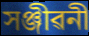
সঞ্জীৱনী